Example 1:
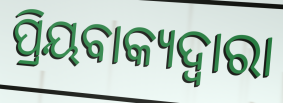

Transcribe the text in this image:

ପ୍ରିୟବାକ୍ୟଦ୍ୱାରା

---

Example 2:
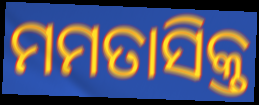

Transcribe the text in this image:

ମମତାସିକ୍ତ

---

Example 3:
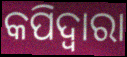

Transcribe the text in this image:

କପିଦ୍ୱାରା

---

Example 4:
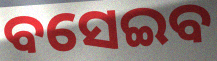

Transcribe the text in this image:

ବସେଇବ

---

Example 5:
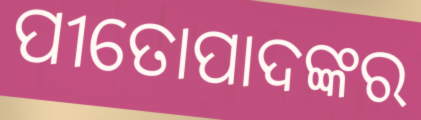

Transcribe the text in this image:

ପୀତୋପାଦଙ୍କର